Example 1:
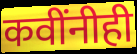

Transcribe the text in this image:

कवींनीही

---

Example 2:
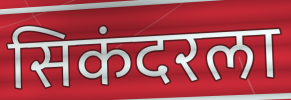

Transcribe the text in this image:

सिकंदरला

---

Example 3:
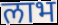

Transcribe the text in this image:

लाभ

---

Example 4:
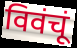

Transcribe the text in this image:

विवंचूं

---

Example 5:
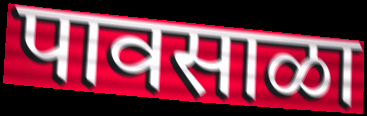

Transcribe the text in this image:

पावसाळा